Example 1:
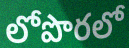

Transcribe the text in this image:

లోపొరలో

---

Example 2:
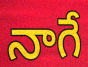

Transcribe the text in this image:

నాగే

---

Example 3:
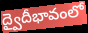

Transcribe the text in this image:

ద్వైదీభావంలో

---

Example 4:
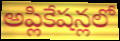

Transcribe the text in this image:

అప్లికేషన్లలో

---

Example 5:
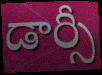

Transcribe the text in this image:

డార్సీ